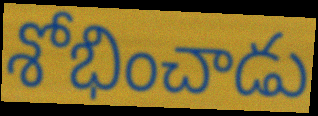
శోభించాడు